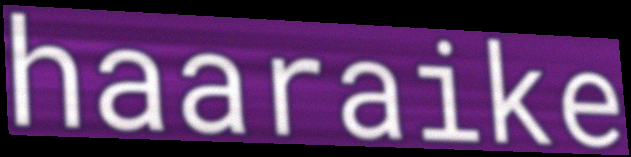
haaraike